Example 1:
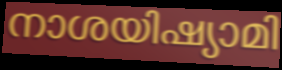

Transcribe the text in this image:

നാശയിഷ്യാമി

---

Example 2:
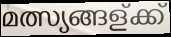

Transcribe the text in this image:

മത്സ്യങ്ങള്ക്ക്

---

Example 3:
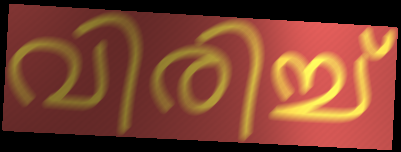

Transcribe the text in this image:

വിരിച്ച്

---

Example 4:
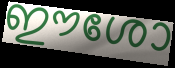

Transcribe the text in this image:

ഈശോ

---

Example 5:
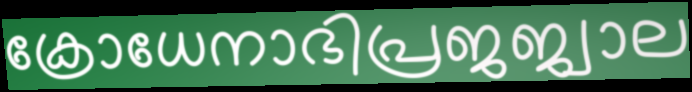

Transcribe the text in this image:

ക്രോധേനാഭിപ്രജജ്വാല